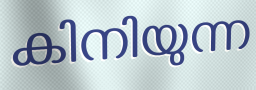
കിനിയുന്ന